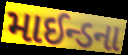
માઈન્ડના